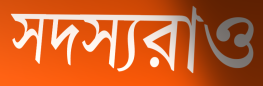
সদস্যরাও